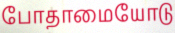
போதாமையோடு